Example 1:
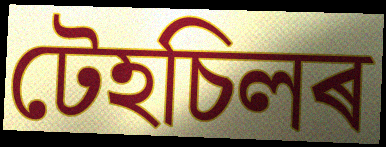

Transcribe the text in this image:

টেহচিলৰ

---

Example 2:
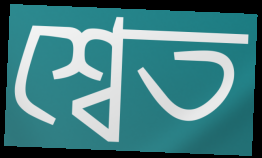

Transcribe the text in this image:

শ্বেত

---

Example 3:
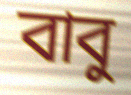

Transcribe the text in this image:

বাবু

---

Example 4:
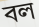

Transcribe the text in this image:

বল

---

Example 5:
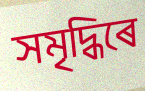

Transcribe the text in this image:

সমৃদ্ধিৰে